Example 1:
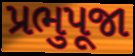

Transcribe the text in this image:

પ્રભુપૂજા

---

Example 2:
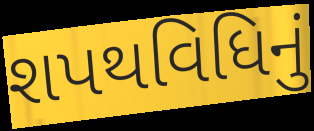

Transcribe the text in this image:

શપથવિધિનું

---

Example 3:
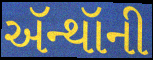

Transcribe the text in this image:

ઍન્થૉની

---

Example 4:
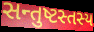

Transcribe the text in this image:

સન્તુષ્ટસ્તસ્ય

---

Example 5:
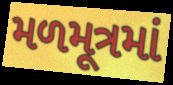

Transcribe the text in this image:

મળમૂત્રમાં